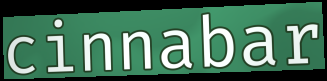
cinnabar